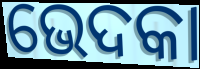
ଭେଦକା